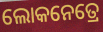
ଲୋକନେତ୍ରେ